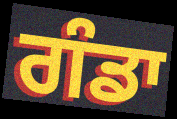
ਗੰਡਾ